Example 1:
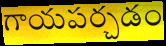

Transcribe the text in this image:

గాయపర్చడం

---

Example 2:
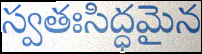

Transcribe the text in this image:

స్వతఃసిద్ధమైన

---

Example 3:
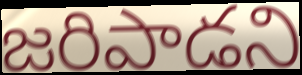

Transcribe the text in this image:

జరిపాడని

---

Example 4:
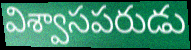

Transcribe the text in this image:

విశ్వాసపరుడు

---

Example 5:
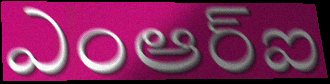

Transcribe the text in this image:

ఎంఆర్ఐ